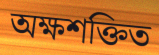
অক্ষশক্তিত